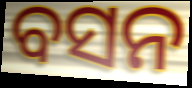
ବସନ